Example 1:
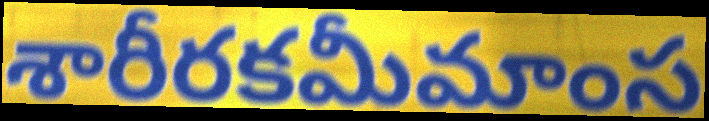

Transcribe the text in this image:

శారీరకమీమాంస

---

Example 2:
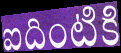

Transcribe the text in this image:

ఐదింటికి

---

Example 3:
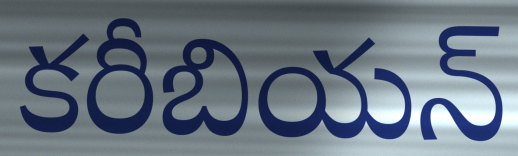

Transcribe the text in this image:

కరీబియన్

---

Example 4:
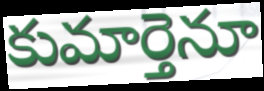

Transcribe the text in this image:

కుమార్తెనూ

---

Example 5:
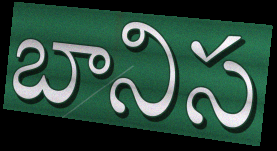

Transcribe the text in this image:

బానిస